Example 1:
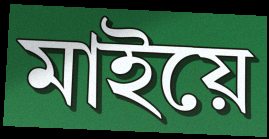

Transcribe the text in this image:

মাইয়ে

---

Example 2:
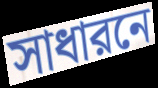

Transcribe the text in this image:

সাধারনে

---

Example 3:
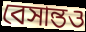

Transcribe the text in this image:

বেসান্তও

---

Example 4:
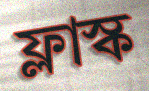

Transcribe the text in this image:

ফ্লাস্ক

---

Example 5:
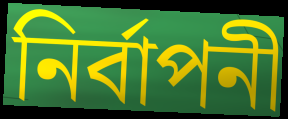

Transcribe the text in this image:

নির্বাপনী